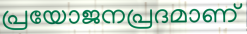
പ്രയോജനപ്രദമാണ്